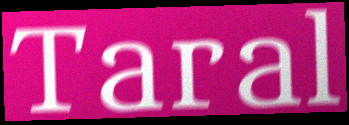
Taral